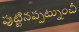
పుట్టినప్పట్నుంచీ